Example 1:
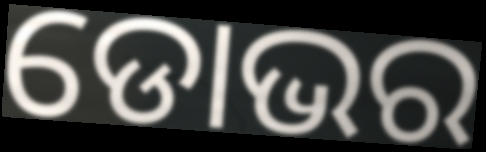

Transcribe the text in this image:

ଡୋଭର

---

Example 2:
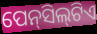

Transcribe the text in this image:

ପେନ୍‍ସିଲ୍‍ଟିଏ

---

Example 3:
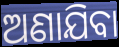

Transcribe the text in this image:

ଅଣାଯିବା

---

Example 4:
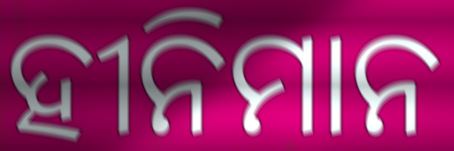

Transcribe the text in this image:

ହୀନିମାନ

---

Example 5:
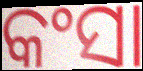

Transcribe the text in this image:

କଂସା